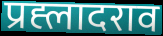
प्रह्लादराव